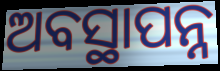
ଅବସ୍ଥାପନ୍ନ